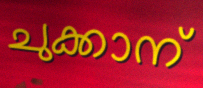
ചുക്കാന്